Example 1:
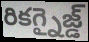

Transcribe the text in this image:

రికగ్నైజ్డ్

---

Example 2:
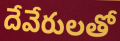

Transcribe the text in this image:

దేవేరులతో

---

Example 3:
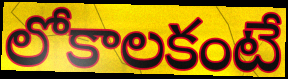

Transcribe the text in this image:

లోకాలకంటే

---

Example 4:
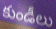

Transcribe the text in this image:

కుండీలు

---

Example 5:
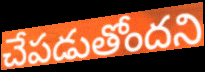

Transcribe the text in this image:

చేపడుతోందని